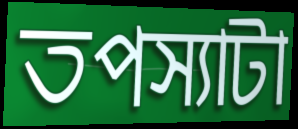
তপস্যাটা